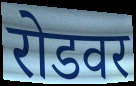
रोडवर